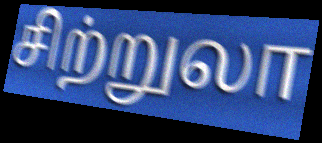
சிற்றுலா